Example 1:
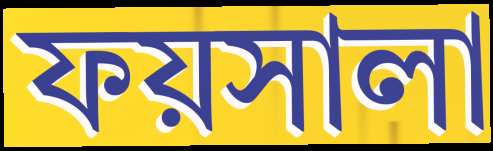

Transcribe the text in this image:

ফয়সালা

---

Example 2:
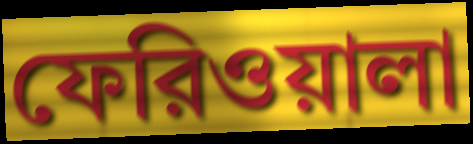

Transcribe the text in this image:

ফেরিওয়ালা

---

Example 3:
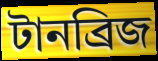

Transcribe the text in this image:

টানব্রিজ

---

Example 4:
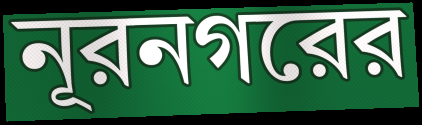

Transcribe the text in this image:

নূরনগরের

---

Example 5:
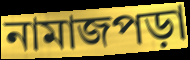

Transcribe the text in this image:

নামাজপড়া